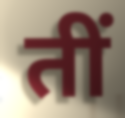
तीं